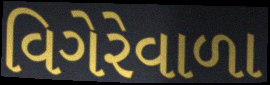
વિગેરેવાળા